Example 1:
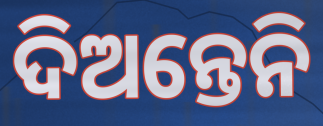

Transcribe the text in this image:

ଦିଅନ୍ତେନି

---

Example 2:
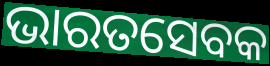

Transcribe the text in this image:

ଭାରତସେବକ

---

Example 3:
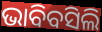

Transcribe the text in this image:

ଭାବିବସିଲି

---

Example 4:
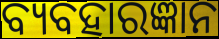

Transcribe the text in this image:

ବ୍ୟବହାରଜ୍ଞାନ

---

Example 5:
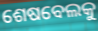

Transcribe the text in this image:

ଶେଷବେଲକୁ